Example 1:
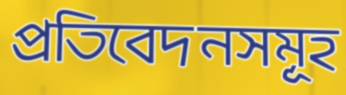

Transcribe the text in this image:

প্ৰতিবেদনসমূহ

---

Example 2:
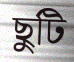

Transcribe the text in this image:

ছুটি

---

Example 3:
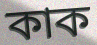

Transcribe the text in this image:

কাক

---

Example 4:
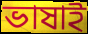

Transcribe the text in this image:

ভাষাই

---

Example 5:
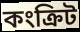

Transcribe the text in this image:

কংক্ৰিট